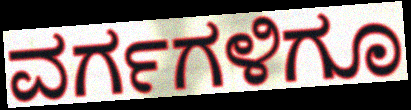
ವರ್ಗಗಳಿಗೂ